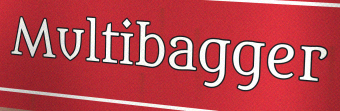
Multibagger